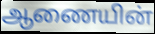
ஆணையின்